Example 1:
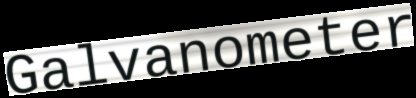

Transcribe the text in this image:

Galvanometer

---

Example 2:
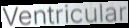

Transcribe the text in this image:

Ventricular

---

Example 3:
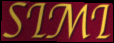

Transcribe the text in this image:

SIMI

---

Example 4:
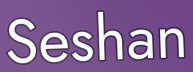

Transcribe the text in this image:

Seshan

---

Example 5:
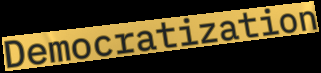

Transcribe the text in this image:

Democratization